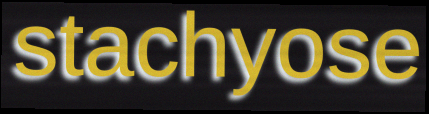
stachyose